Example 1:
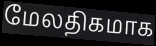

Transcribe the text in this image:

மேலதிகமாக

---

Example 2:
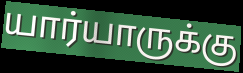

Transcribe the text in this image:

யார்யாருக்கு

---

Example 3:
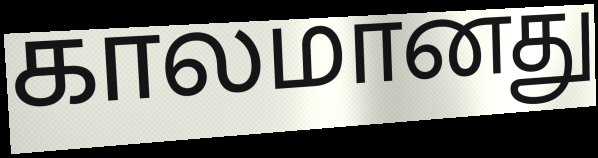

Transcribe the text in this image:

காலமானது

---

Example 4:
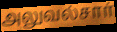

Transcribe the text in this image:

அலுவல்சார்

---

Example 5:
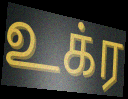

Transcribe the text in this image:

உக்ர